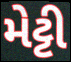
મેટ્ટી